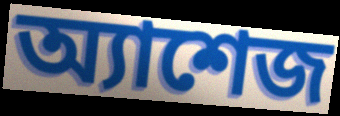
অ্যাশেজ